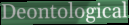
Deontological